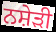
ਨਸ਼ੇੜੀ